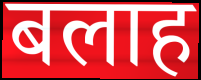
बलाह